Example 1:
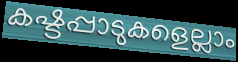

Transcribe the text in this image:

കഷ്ടപ്പാടുകളെല്ലാം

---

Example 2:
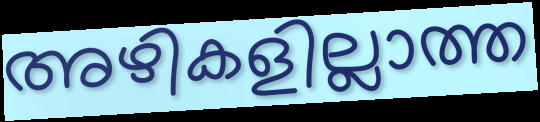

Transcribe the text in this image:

അഴികളില്ലാത്ത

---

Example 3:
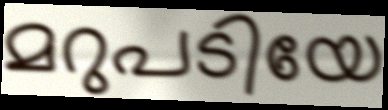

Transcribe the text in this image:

മറുപടിയേ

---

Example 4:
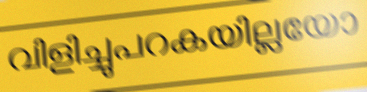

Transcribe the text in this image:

വിളിച്ചുപറകയില്ലയോ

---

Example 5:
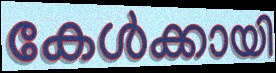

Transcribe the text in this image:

കേൾക്കായി